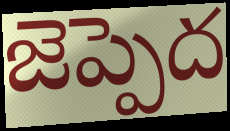
జెప్పెద